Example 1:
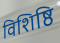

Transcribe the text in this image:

विशिष्ठि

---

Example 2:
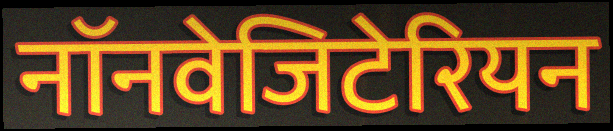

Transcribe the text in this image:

नॉनवेजिटेरियन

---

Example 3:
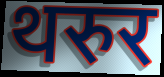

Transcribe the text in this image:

थरुर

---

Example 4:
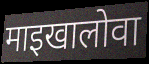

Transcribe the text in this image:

माइखालोवा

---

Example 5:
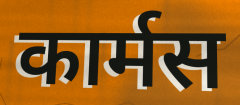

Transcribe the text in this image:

कार्मस